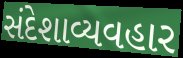
સંદેશાવ્યવહાર